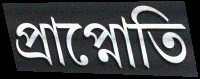
প্রাপ্নোতি